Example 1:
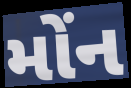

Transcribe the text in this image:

મોંન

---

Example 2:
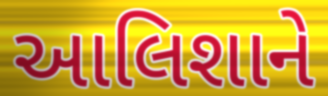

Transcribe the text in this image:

આલિશાને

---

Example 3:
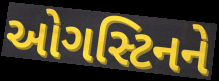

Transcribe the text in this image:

ઓગસ્ટિનને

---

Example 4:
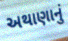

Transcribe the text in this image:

અથાણાનું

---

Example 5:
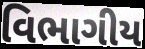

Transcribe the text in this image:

વિભાગીય